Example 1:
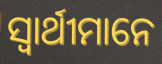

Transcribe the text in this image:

ସ୍ଵାର୍ଥୀମାନେ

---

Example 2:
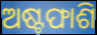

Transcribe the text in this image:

ଅଷ୍ଟଫାଶି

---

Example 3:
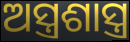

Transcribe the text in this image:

ଅସ୍ତ୍ରଶାସ୍ତ୍ର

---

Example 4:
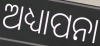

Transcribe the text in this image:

ଅଧ୍ୟାପନା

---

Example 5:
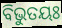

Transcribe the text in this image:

ବିଭୁତୟଃ